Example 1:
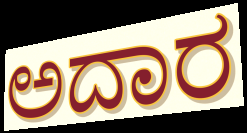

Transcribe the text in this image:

ಅದಾರ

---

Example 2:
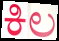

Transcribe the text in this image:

ಕಿಲ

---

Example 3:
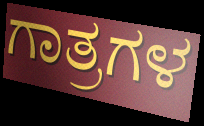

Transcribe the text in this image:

ಗಾತ್ರಗಳ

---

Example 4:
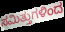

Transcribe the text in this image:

ಸಮಿತ್ತುಗಳಿಂದ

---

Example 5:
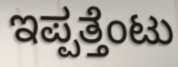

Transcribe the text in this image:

ಇಪ್ಪತ್ತೆಂಟು